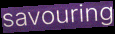
savouring